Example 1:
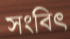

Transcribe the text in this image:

সংবিৎ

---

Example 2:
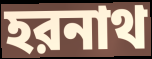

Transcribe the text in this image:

হরনাথ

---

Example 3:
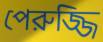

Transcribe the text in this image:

পেরুজ্জি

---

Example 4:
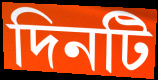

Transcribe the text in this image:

দিনটি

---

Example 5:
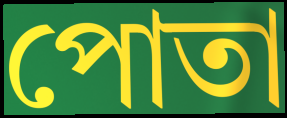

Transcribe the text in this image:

পোতা